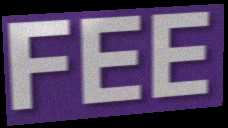
FEE